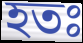
হতঃ